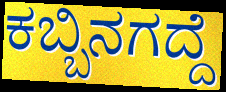
ಕಬ್ಬಿನಗದ್ದೆ